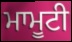
ਮਾਮੂਟੀ